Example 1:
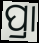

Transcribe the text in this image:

ପ୍ରା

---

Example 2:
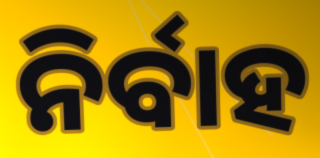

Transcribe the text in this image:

ନିର୍ବାହ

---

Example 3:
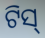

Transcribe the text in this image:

ଟିସ୍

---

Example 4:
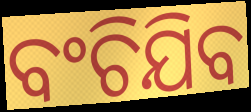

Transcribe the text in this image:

ବଂଚିଯିବ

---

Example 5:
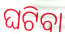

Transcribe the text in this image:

ଘଟିବା